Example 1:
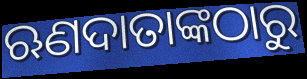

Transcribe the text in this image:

ଋଣଦାତାଙ୍କଠାରୁ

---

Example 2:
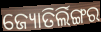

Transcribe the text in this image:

ଜ୍ୟୋତିର୍ଲିଙ୍ଗର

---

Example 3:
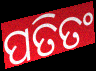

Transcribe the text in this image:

ପତିତଂ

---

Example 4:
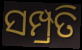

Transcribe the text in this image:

ସମ୍ପ୍ରତି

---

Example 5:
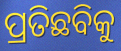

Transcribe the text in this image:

ପ୍ରତିଛବିକୁ